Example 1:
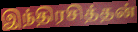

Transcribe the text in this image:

இந்திரசித்தன்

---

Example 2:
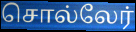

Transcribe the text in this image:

சொல்லேர்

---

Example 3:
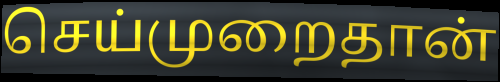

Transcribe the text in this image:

செய்முறைதான்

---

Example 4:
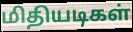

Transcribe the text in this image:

மிதியடிகள்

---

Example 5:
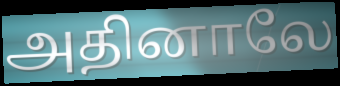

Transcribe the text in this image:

அதினாலே